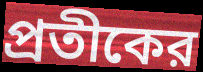
প্রতীকের